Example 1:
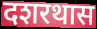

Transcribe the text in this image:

दशरथास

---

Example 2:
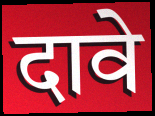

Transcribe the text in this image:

दावे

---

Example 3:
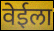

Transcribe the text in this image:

वेईला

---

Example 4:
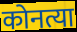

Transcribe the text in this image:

कोनत्या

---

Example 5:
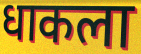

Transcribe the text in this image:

धाकला